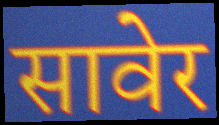
सावेर